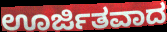
ಊರ್ಜಿತವಾದ